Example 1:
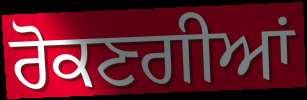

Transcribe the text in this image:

ਰੋਕਣਗੀਆਂ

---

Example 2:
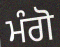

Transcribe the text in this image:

ਮੰਗੋ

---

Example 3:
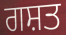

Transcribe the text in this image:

ਗਸ਼ਤ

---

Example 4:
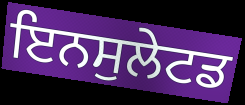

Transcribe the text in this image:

ਇਨਸੁਲੇਟਡ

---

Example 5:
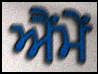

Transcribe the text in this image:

ਐਂਮੇਂ